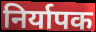
निर्यापक